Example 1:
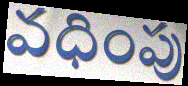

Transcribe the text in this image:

వధింపు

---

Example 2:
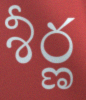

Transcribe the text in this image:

శీర్ణ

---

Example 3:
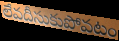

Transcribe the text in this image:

లేవదీసుకుపోవటం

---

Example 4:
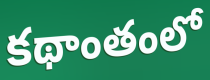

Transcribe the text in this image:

కథాంతంలో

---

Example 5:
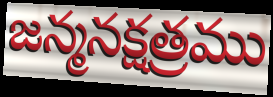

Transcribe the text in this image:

జన్మనక్షత్రము